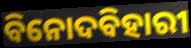
ବିନୋଦବିହାରୀ